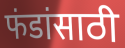
फंडांसाठी